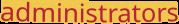
administrators